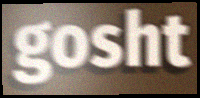
gosht